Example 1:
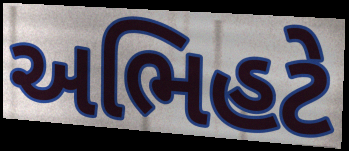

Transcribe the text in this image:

અભિહટે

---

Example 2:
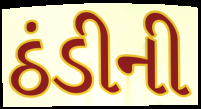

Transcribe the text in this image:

ઠંડીની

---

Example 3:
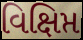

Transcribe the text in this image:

વિક્ષિપ્ત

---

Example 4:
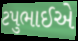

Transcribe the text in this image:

ટપુભાઈએ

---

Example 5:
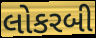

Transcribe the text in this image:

લોકરબી